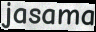
jasama